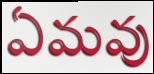
ఏమవు